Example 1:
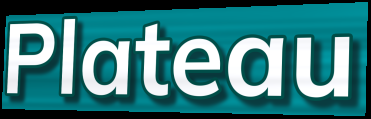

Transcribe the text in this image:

Plateau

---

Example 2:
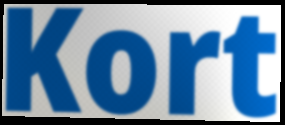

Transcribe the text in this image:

Kort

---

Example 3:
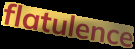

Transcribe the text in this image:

flatulence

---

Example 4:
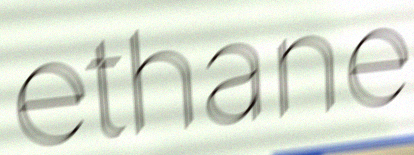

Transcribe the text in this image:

ethane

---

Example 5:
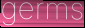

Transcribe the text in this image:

germs